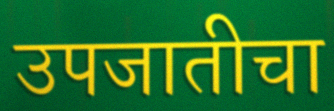
उपजातीचा